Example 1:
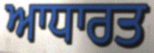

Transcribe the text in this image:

ਆਧਾਰਤ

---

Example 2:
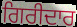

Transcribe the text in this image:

ਗਿਰੀਦਾਰ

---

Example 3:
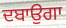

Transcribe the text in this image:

ਦਬਾਉਗਾ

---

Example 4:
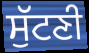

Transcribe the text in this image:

ਸੁੱਟਣੀ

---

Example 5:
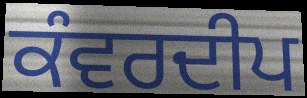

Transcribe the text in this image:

ਕੰਵਰਦੀਪ